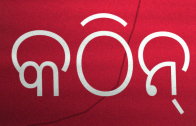
କଠିନ୍